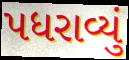
પધરાવ્યું